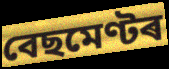
বেছমেণ্টৰ